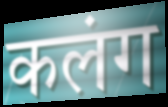
कलंग